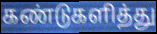
கண்டுகளித்து